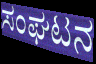
ಸಂಘಟನ